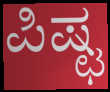
ಪಿಷ್ಟ